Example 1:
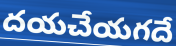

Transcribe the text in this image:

దయచేయగదే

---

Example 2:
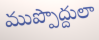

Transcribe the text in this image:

ముప్పొద్దులా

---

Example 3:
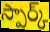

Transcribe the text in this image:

స్పార్క్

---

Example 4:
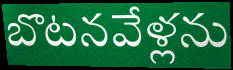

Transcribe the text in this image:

బొటనవేళ్లను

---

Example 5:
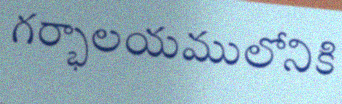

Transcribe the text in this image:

గర్భాలయములోనికి